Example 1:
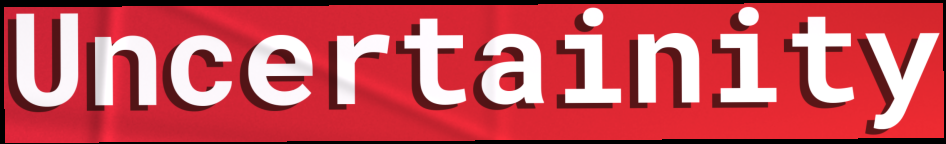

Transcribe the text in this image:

Uncertainity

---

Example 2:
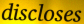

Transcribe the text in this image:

discloses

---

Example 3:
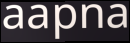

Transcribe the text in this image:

aapna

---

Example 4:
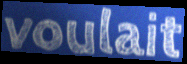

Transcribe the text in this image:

voulait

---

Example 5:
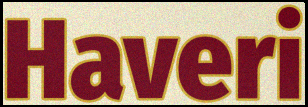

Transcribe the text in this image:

Haveri